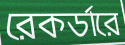
রেকর্ডারে